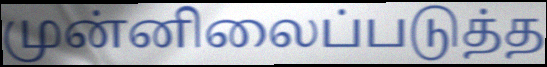
முன்னிலைப்படுத்த